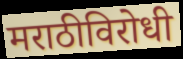
मराठीविरोधी